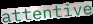
attentive